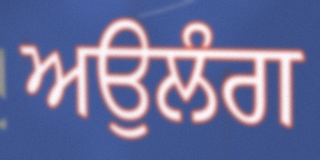
ਅਉਲੰਗ